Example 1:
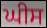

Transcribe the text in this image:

ਘੀਸ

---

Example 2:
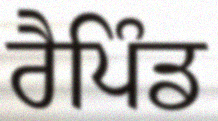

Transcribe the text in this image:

ਰੈਪਿੰਡ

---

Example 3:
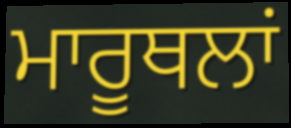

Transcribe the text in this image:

ਮਾਰੂਥਲਾਂ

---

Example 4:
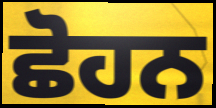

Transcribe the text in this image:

ਛੋਹਨ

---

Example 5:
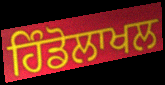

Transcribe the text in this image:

ਹਿੰਡੋਲਾਖਲ